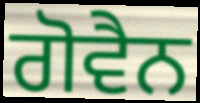
ਗੋਵੈਨ